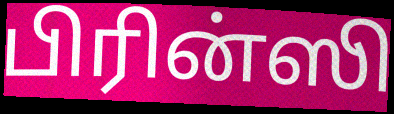
பிரின்ஸி